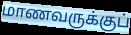
மாணவருக்குப்